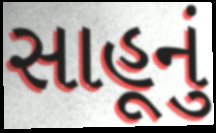
સાહૂનું